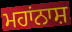
ਮਹਾਂਨਾਸ਼